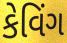
કેવિંગ